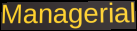
Managerial